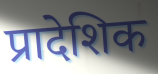
प्रादेशिक